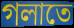
গলাতে